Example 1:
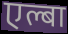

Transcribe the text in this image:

एल्बा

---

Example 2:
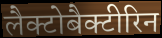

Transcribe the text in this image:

लैक्टोबैक्टीरिन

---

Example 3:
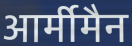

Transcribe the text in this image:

आर्मीमैन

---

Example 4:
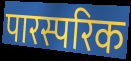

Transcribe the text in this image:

पारस्परिक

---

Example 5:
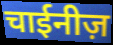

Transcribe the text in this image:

चाईनीज़